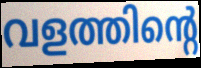
വളത്തിന്റെ